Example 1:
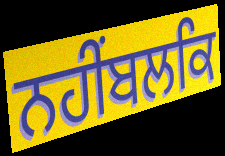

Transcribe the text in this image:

ਨਹੀਂਬਲਕਿ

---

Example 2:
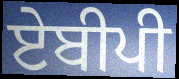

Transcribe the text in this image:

ਏਬੀਪੀ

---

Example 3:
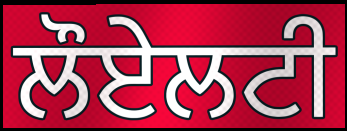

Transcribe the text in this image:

ਲੌਏਲਟੀ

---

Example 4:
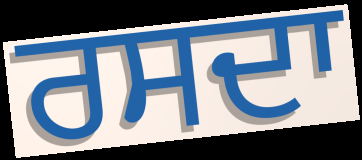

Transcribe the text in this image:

ਰਸਦਾ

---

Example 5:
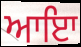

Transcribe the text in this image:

ਆਇਾ